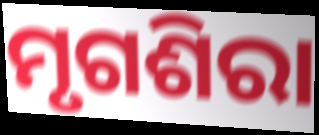
ମୃଗଶିରା